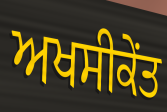
ਅਖਸੀਕੇਂਤ